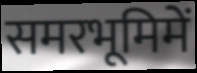
समरभूमिमें